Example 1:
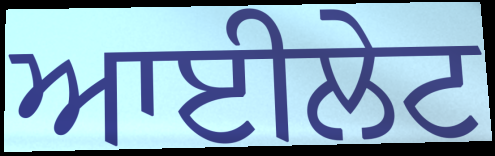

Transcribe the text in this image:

ਆਈਲੇਟ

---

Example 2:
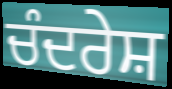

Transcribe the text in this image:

ਚੰਦਰੇਸ਼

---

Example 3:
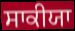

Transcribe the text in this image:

ਸਾਕੀਯਾ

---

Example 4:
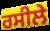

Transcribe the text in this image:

ਰਸੀਲੇ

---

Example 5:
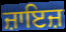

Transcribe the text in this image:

ਜ਼ਾਇਜ਼